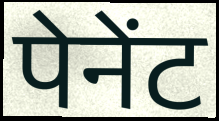
पेनेंट